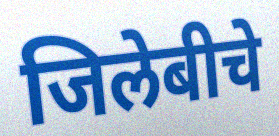
जिलेबीचे